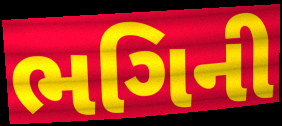
ભગિની